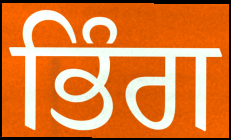
ਭਿੰਗ